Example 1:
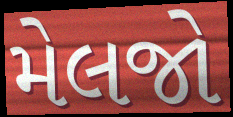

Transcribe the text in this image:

મેલજો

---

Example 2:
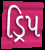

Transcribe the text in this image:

ડ્રિપ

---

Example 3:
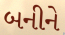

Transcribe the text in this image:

બનીને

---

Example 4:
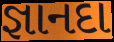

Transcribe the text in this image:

જ્ઞાનદા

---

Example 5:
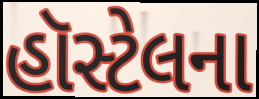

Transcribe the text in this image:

હૉસ્ટેલના